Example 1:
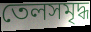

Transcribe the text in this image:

তেলসমৃদ্ধ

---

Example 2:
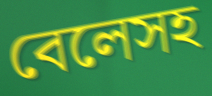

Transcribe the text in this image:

বেলেসহ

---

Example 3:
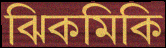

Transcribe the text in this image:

ঝিকমিকি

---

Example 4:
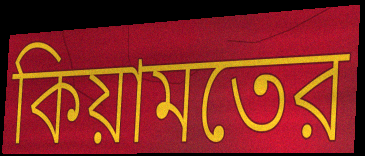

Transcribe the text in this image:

কিয়ামতের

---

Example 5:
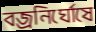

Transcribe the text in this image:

বজ্রনির্ঘোষে